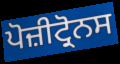
ਪੋਜ਼ੀਟ੍ਰੋਨਸ